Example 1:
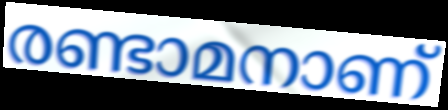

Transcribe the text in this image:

രണ്ടാമനാണ്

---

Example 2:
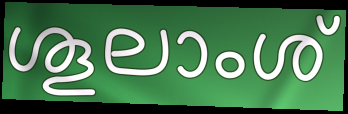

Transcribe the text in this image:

ശൂലാംശ്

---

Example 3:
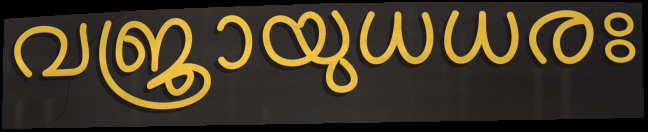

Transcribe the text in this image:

വജ്രായുധധരഃ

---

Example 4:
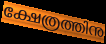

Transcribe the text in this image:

ക്ഷേത്രത്തിനു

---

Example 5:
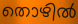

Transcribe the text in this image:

തൊഴിൽ